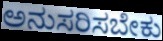
ಅನುಸರಿಸಬೇಕು